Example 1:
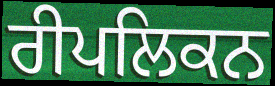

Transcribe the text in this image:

ਰੀਪਲਿਕਨ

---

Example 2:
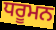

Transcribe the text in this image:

ਧਰੂਮਨ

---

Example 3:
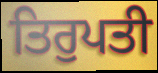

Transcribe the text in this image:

ਤਿਰੁਪਤੀ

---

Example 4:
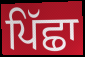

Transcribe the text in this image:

ਪਿੱਛਾ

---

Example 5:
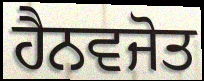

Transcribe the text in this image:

ਹੈਨਵਜੋਤ